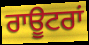
ਰਾਊਟਰਾਂ